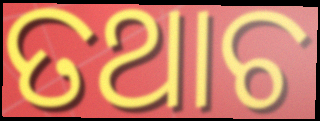
ତଥାଚ